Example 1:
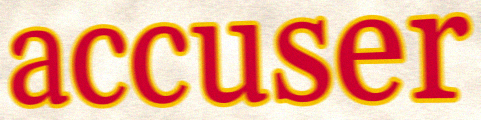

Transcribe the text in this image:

accuser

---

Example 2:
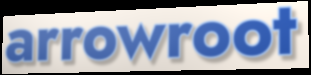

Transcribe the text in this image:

arrowroot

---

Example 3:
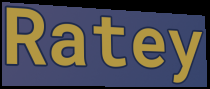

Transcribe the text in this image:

Ratey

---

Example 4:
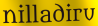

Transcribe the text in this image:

nilladiru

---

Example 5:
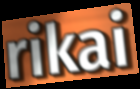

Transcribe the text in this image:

rikai